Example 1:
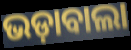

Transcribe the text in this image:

ଭଡ଼ାବାଲା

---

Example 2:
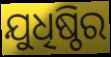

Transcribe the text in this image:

ଯୁଧିଷ୍ଠିର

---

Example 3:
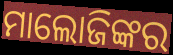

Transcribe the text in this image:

ମାଲୋଜିଙ୍କର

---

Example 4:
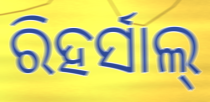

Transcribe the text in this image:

ରିହର୍ସାଲ୍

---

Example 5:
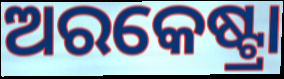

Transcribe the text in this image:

ଅରକେଷ୍ଟ୍ରା